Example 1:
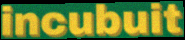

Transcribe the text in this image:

incubuit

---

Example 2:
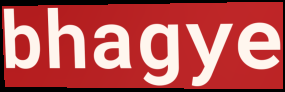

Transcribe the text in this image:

bhagye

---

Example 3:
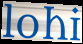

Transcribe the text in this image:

lohi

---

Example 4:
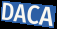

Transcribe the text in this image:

DACA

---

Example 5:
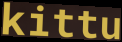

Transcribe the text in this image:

kittu